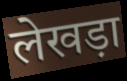
लेखड़ा